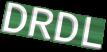
DRDL